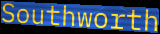
Southworth